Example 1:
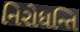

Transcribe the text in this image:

નિરોધન્તિ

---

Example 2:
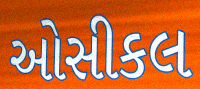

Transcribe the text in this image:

ઓસીકલ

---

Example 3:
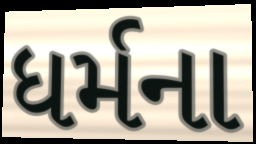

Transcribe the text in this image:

ધર્મના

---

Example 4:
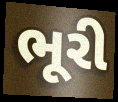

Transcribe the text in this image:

ભૂરી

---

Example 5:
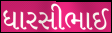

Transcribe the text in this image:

ધારસીભાઈ